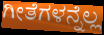
ಗೀತೆಗಳನ್ನೆಲ್ಲ